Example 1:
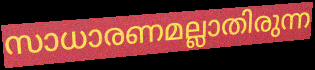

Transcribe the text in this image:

സാധാരണമല്ലാതിരുന്ന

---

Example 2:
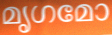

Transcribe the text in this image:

മൃഗമോ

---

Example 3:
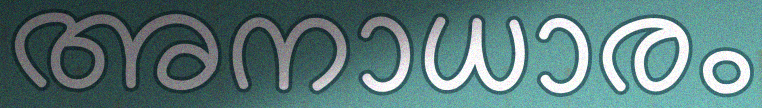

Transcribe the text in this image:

അനാധാരം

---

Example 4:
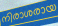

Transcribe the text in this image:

നിരാശരായ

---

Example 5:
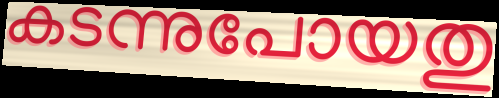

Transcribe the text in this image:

കടന്നുപോയതു